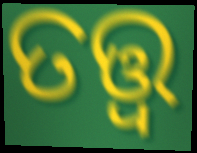
ତତ୍ତ୍ବ